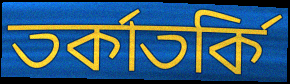
তৰ্কাতৰ্কি